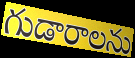
గుడారాలను